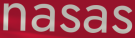
nasas